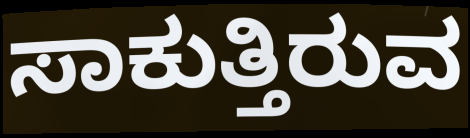
ಸಾಕುತ್ತಿರುವ